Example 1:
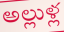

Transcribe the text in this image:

అల్లుళ్ల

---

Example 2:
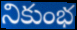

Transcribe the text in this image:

నికుంభ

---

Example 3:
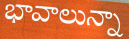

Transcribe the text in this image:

భావాలున్నా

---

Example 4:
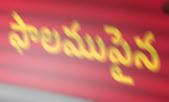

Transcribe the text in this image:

ఫాలముపైన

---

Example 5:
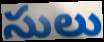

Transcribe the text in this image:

సులు